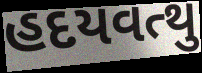
હદયવત્થુ